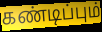
கண்டிப்பும்